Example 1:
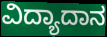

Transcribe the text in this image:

ವಿದ್ಯಾದಾನ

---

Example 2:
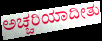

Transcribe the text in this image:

ಅಚ್ಚರಿಯಾದೀತು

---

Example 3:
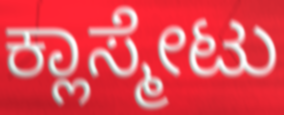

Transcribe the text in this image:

ಕ್ಲಾಸ್ಮೇಟು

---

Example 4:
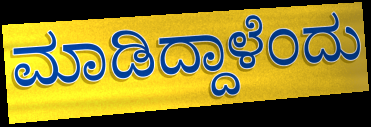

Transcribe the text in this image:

ಮಾಡಿದ್ದಾಳೆಂದು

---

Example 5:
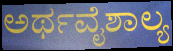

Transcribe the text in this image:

ಅರ್ಥವೈಶಾಲ್ಯ